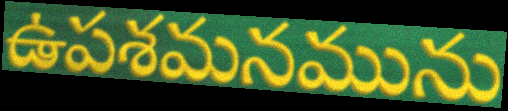
ఉపశమనమును